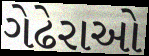
ગેઢેરાઓ